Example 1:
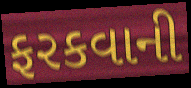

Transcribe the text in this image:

ફરકવાની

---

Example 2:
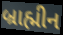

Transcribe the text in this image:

બ્રાહ્મીન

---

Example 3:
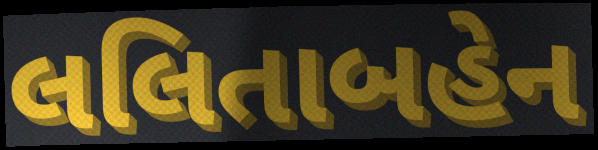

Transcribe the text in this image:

લલિતાબહેન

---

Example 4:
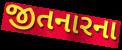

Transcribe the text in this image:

જીતનારના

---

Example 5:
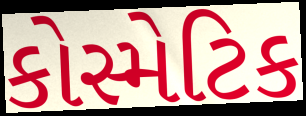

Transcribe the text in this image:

કોસ્મેટિક